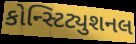
કોન્સ્ટિટ્યુશનલ